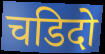
चडिदो